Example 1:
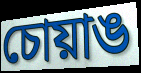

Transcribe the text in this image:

চোয়াঙ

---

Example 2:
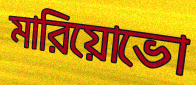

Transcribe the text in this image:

মারিয়োভো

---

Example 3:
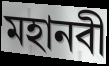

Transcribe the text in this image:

মহানবী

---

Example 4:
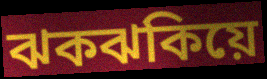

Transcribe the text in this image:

ঝকঝকিয়ে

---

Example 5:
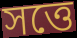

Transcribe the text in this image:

সত্তে